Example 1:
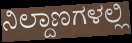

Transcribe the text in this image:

ನಿಲ್ದಾಣಗಳಲ್ಲಿ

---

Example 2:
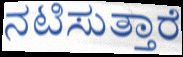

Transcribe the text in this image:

ನಟಿಸುತ್ತಾರೆ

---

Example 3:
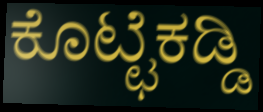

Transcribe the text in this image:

ಕೊಟ್ಟೆಕಡ್ಡಿ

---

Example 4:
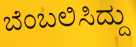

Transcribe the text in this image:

ಬೆಂಬಲಿಸಿದ್ದು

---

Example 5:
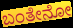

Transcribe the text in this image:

ಬಂತೇನೋ